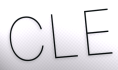
CLE